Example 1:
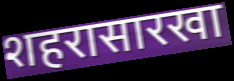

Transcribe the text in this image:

शहरासारखा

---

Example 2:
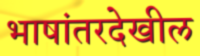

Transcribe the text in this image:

भाषांतरदेखील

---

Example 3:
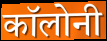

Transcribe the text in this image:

कॉलोनी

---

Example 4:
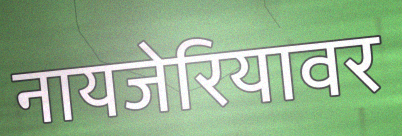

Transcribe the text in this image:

नायजेरियावर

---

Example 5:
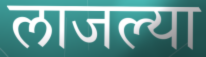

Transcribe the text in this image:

लाजल्या